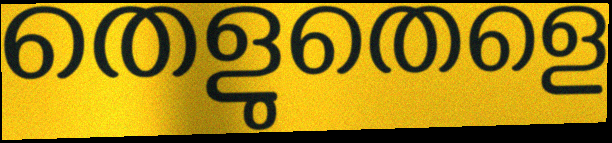
തെളുതെളെ